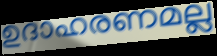
ഉദാഹരണമല്ല